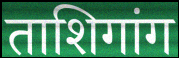
ताशिगांग